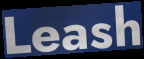
Leash